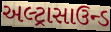
અલ્ટ્રાસાઉન્ડ